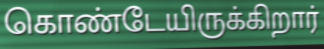
கொண்டேயிருக்கிறார்